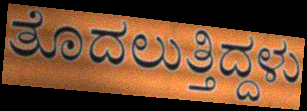
ತೊದಲುತ್ತಿದ್ದಳು